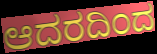
ಆದರದಿಂದ